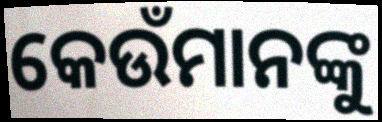
କେଉଁମାନଙ୍କୁ